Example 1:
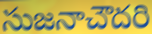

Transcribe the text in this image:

సుజనాచౌదరి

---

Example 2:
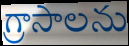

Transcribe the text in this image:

గ్రాసాలను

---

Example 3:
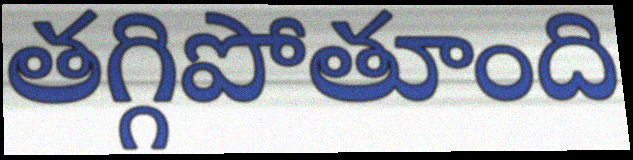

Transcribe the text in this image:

తగ్గిపోతూంది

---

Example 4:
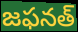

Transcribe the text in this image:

జఫనత్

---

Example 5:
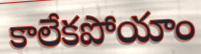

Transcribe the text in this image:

కాలేకపోయాం